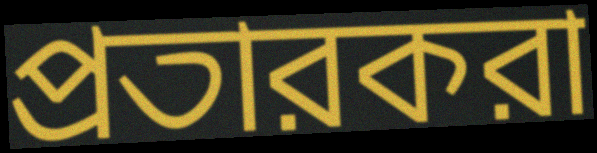
প্রতারকরা